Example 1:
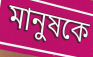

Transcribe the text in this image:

মানুষকে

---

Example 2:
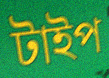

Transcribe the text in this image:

টাইপ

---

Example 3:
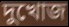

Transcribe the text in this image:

দুখোজ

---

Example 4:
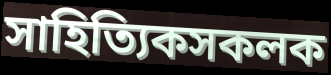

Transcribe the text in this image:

সাহিত্যিকসকলক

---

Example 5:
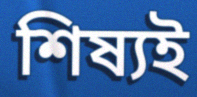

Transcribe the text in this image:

শিষ্যই